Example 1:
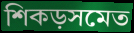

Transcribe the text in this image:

শিকড়সমেত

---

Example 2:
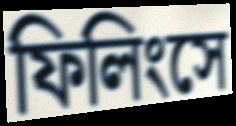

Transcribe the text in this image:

ফিলিংসে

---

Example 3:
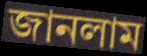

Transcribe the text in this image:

জানলাম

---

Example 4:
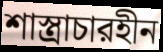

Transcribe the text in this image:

শাস্ত্রাচারহীন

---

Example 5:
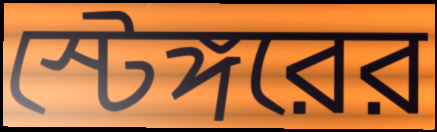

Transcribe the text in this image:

স্টেঙ্গরের